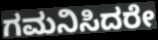
ಗಮನಿಸಿದರೇ